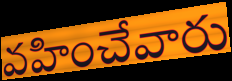
వహించేవారు